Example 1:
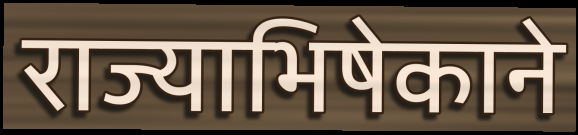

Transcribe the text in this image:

राज्याभिषेकाने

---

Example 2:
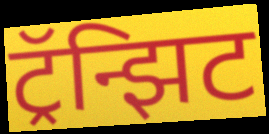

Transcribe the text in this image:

ट्रॅन्झिट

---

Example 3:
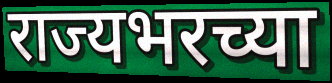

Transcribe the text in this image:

राज्यभरच्या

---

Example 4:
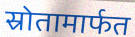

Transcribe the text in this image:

स्रोतामार्फत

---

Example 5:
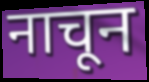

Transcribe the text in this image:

नाचून